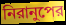
নিরানুপের